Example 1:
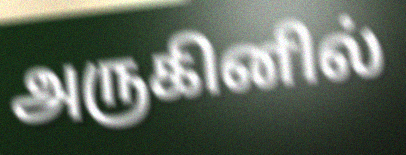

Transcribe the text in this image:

அருகினில்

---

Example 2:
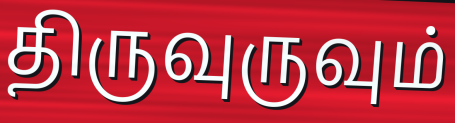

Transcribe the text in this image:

திருவுருவும்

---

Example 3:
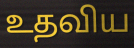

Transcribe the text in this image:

உதவிய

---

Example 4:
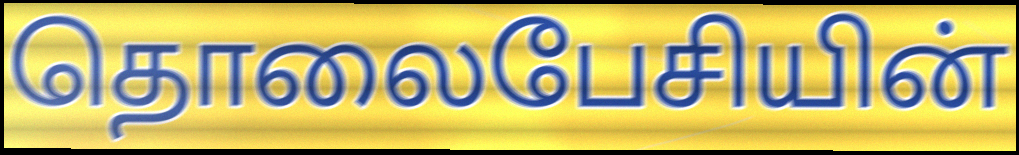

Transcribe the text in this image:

தொலைபேசியின்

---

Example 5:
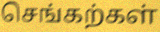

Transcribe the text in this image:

செங்கற்கள்